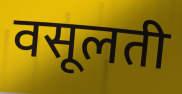
वसूलती